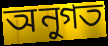
অনুগত